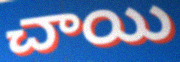
చాయి